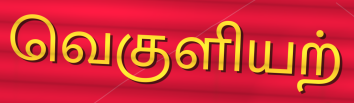
வெகுளியற்